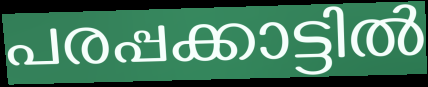
പരപ്പക്കാട്ടിൽ